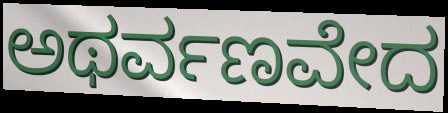
ಅಥರ್ವಣವೇದ